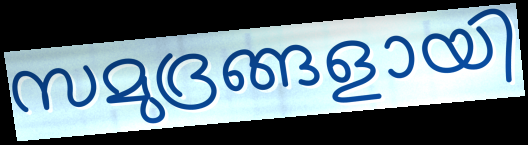
സമുദ്രങ്ങളായി